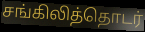
சங்கிலித்தொடர்